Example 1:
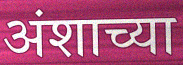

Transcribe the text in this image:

अंशाच्या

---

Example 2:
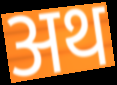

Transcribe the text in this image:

अथ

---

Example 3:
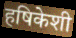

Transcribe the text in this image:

हषिकेशी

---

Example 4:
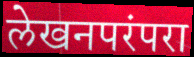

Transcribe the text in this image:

लेखनपरंपरा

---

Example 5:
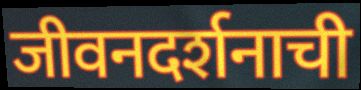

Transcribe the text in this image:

जीवनदर्शनाची